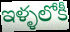
ఇళ్ళలోకీ